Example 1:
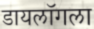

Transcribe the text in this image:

डायलॉगला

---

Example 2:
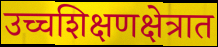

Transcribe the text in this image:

उच्चशिक्षणक्षेत्रात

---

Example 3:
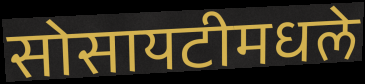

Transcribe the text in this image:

सोसायटीमधले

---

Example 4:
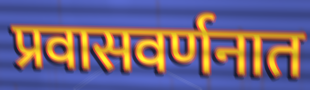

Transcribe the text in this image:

प्रवासवर्णनात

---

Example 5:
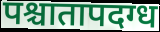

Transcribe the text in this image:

पश्चातापदग्ध